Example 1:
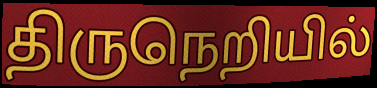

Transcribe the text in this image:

திருநெறியில்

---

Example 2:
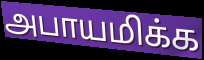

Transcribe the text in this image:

அபாயமிக்க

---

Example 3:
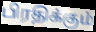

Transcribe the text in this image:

பிரதிக்கும்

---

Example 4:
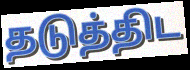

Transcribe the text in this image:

தடுத்திட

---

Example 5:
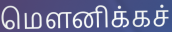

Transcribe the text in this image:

மௌனிக்கச்